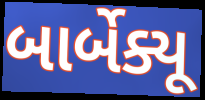
બાર્બેક્યૂ